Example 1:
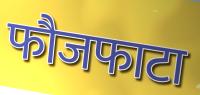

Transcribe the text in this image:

फौजफाटा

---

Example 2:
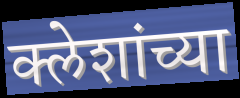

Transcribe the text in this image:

क्लेशांच्या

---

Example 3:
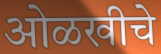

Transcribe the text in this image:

ओळखीचे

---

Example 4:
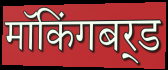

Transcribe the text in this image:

मॉकिंगबर्ड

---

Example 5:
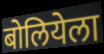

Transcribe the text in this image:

बोलियेला